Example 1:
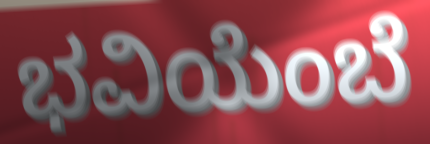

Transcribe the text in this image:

ಭವಿಯೆಂಬೆ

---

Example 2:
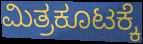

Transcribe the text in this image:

ಮಿತ್ರಕೂಟಕ್ಕೆ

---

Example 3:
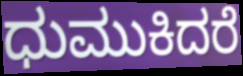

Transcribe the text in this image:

ಧುಮುಕಿದರೆ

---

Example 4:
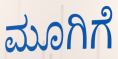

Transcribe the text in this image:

ಮೂಗಿಗೆ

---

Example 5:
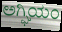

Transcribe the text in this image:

ಅಗ್ಘಿಯಂ